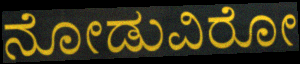
ನೋಡುವಿರೋ